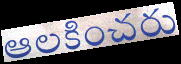
ఆలకించరు